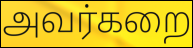
அவர்கறை